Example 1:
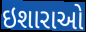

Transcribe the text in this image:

ઇશારાઓ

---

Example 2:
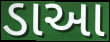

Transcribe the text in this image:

ડાઆ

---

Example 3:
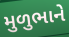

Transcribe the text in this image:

મુળુભાને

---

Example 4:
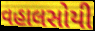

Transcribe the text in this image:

વહાલસોયી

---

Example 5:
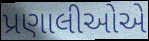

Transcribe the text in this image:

પ્રણાલીઓએ